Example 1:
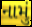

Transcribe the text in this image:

નામું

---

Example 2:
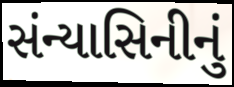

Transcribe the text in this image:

સંન્યાસિનીનું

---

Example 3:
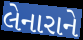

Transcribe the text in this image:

લેનારાને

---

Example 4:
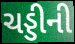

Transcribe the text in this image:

ચડ્ડીની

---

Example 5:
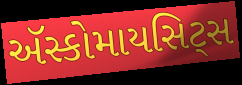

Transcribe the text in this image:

ઍસ્કોમાયસિટ્સ